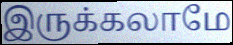
இருக்கலாமே